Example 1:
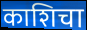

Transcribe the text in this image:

काशिचा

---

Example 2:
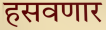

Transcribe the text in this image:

हसवणार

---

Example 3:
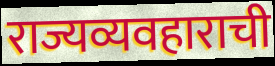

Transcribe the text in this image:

राज्यव्यवहाराची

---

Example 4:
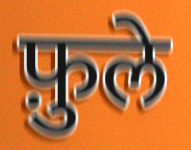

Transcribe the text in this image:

फ़ुले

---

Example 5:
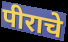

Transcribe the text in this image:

पीराचे